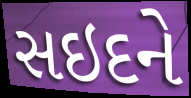
સઇદને